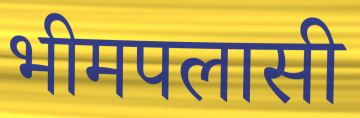
भीमपलासी